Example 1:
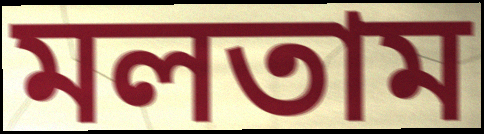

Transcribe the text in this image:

মলতাম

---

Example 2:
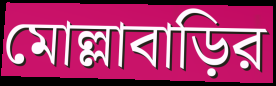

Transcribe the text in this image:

মোল্লাবাড়ির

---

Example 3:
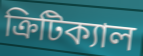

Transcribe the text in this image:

ক্রিটিক্যাল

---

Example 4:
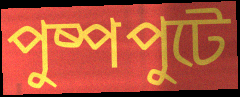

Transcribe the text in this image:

পুষ্পপুটে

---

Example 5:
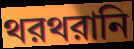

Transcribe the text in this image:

থরথরানি